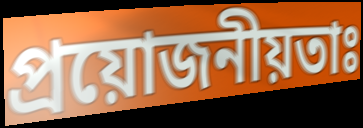
প্ৰয়োজনীয়তাঃ